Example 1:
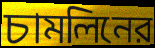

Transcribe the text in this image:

চামলিনের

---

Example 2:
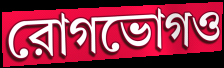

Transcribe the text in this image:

রোগভোগও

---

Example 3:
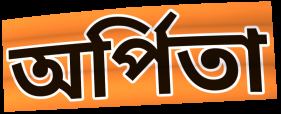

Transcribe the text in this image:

অর্পিতা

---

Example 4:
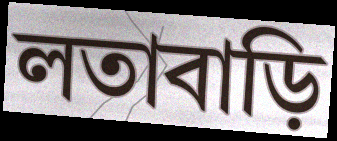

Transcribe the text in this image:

লতাবাড়ি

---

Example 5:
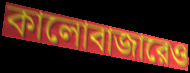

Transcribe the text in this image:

কালোবাজারেও